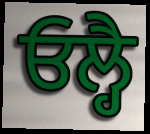
ਓਲ੍ਹ੍ਹੈ